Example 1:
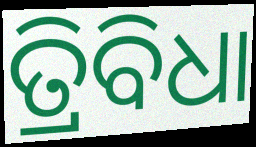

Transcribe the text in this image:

ତ୍ରିବିଧା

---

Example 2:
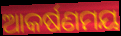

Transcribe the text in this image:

ଆକର୍ଷଣମୟ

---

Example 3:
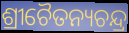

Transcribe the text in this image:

ଶ୍ରୀଚୈତନ୍ୟଚନ୍ଦ୍ର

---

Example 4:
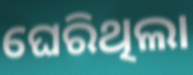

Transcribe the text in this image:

ଘେରିଥିଲା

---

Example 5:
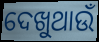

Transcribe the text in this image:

ଦେଖୁଥାଉଁ